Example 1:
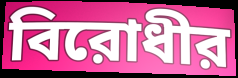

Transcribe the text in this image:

বিরোধীর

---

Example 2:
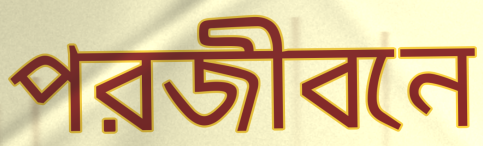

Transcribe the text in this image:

পরজীবনে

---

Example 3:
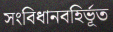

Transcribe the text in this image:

সংবিধানবহির্ভূত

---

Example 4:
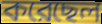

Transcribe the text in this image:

করেছেল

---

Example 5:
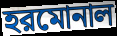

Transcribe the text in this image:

হরমোনাল